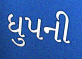
ધુપની